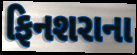
ફિનશરાના